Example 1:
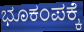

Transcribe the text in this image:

ಭೂಕಂಪಕ್ಕೆ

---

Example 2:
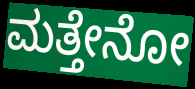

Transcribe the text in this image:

ಮತ್ತೇನೋ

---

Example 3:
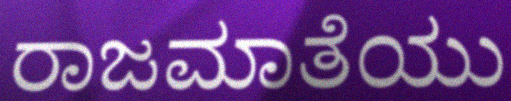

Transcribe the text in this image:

ರಾಜಮಾತೆಯು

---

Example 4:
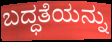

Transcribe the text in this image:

ಬದ್ಧತೆಯನ್ನು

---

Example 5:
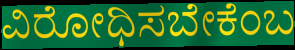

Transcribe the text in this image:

ವಿರೋಧಿಸಬೇಕೆಂಬ